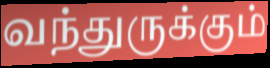
வந்துருக்கும்